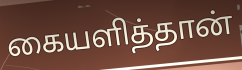
கையளித்தான்